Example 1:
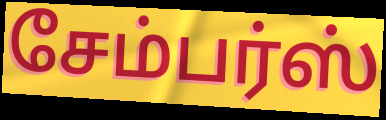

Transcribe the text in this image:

சேம்பர்ஸ்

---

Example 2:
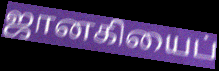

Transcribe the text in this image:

ஜானகியைப்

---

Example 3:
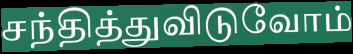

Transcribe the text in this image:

சந்தித்துவிடுவோம்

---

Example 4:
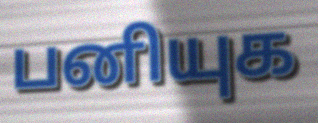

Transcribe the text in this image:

பனியுக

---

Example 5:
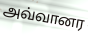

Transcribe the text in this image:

அவ்வானர